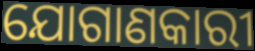
ଯୋଗାଣକାରୀ